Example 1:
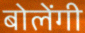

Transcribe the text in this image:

बोलेंगी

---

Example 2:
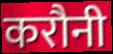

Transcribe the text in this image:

करौनी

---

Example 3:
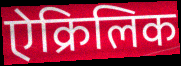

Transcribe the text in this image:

ऐक्रिलिक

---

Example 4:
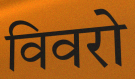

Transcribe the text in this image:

विवरो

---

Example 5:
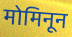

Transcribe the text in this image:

मोमिनून